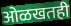
ओळखतही